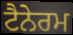
ਟੈਨੇਰਮ